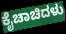
ಕೈಚಾಚಿದಳು